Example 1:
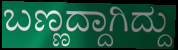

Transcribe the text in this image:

ಬಣ್ಣದ್ದಾಗಿದ್ದು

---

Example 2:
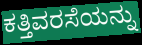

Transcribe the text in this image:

ಕತ್ತಿವರಸೆಯನ್ನು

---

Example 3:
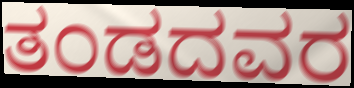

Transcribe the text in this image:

ತಂಡದವರ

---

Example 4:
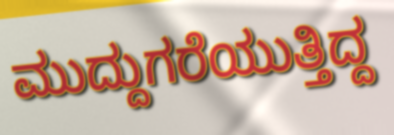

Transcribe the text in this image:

ಮುದ್ದುಗರೆಯುತ್ತಿದ್ದ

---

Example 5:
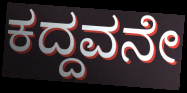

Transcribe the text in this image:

ಕದ್ದವನೇ